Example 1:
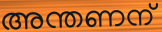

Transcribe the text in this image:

അന്തണന്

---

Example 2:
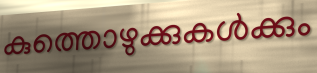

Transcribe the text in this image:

കുത്തൊഴുക്കുകൾക്കും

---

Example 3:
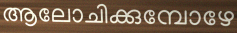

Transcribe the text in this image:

ആലോചിക്കുമ്പോഴേ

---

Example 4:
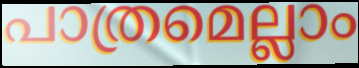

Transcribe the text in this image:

പാത്രമെല്ലാം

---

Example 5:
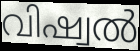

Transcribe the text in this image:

വിഷ്വൽ